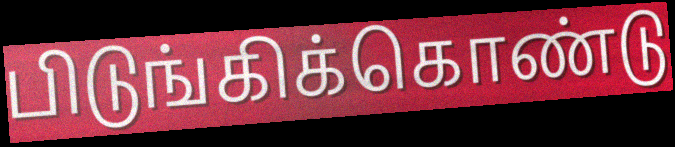
பிடுங்கிக்கொண்டு